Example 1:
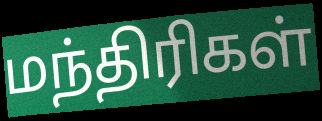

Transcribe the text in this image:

மந்திரிகள்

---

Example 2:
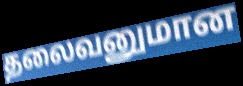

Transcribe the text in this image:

தலைவனுமான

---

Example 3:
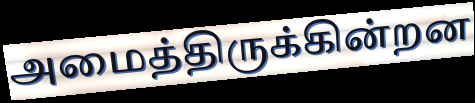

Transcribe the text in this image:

அமைத்திருக்கின்றன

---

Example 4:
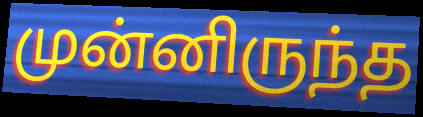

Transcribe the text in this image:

முன்னிருந்த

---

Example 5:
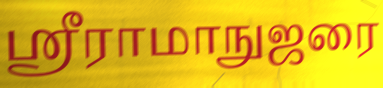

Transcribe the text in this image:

ஸ்ரீராமாநுஜரை